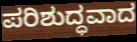
ಪರಿಶುದ್ಧವಾದ